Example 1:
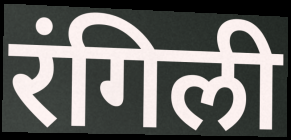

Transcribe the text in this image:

रंगिली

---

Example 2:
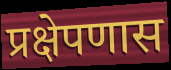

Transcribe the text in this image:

प्रक्षेपणास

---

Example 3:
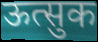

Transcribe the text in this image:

ऊत्सुक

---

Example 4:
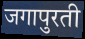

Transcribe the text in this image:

जगापुरती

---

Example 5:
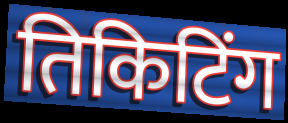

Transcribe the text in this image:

तिकिटिंग